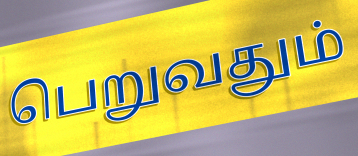
பெறுவதும்